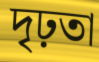
দৃঢ়তা